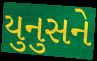
યુનુસને